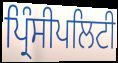
ਪ੍ਰਿੰਸੀਪਲਿਟੀ